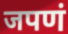
जपणं